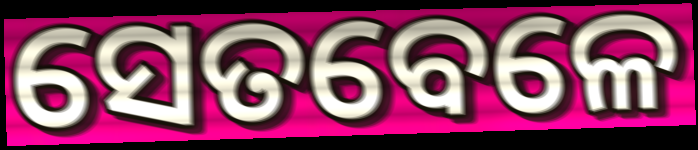
ସେତବେଳେ